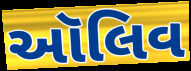
ઑલિવ